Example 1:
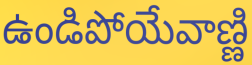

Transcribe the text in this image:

ఉండిపోయేవాణ్ణి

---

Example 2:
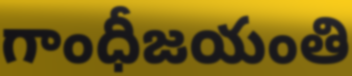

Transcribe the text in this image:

గాంధీజయంతి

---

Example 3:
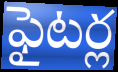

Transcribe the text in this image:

ఫైటర్ల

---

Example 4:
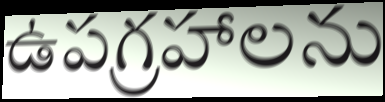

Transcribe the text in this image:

ఉపగ్రహాలను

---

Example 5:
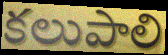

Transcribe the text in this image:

కలుపాలి